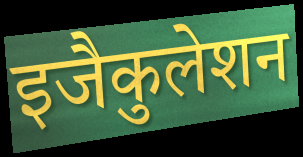
इजैकुलेशन